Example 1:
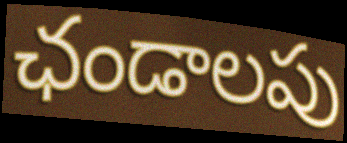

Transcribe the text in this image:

ఛండాలపు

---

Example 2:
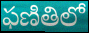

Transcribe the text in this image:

ఫణితిలో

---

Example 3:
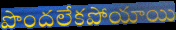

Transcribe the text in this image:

పొందలేకపోయాయి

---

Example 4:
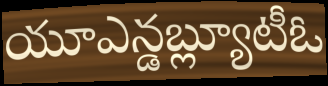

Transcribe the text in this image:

యూఎన్డబ్ల్యూటీఓ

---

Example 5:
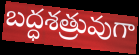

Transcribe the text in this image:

బద్ధశత్రువుగా